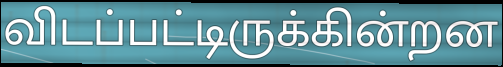
விடப்பட்டிருக்கின்றன